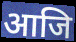
आजि